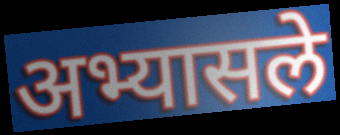
अभ्यासले